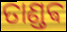
ତାଣ୍ଡଵ